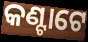
କଣ୍ଟାଟେ